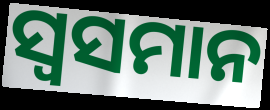
ସ୍ୱସମାନ